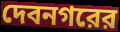
দেবনগরের